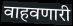
वाहवणारी